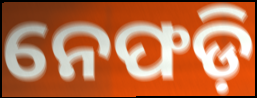
ନେଫଡ଼ି